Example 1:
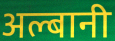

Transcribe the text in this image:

अल्बानी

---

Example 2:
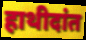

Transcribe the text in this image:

हाथीदांत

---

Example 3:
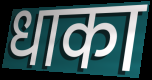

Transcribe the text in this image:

धाका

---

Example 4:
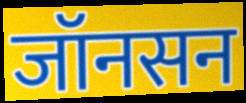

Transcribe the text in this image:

जॉनसन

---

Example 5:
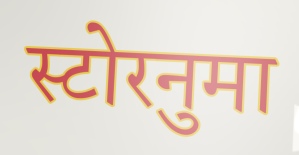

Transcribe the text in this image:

स्टोरनुमा